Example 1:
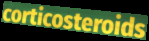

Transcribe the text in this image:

corticosteroids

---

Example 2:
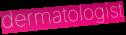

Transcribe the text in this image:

dermatologist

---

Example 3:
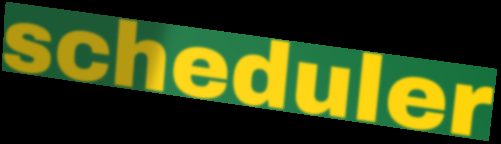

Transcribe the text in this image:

scheduler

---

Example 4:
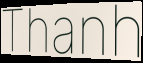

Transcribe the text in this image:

Thanh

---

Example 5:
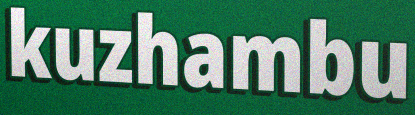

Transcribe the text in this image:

kuzhambu